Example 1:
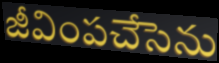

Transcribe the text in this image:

జీవింపచేసెను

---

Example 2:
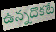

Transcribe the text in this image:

ఉన్నదొకటే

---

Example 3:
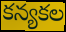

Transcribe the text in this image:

కన్యకల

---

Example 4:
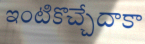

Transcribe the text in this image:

ఇంటికొచ్చేదాకా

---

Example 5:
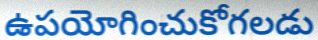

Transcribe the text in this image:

ఉపయోగించుకోగలడు